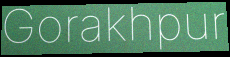
Gorakhpur